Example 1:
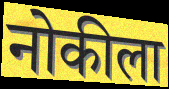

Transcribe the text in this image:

नोकीला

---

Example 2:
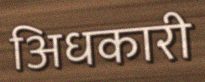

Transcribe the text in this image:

अिधकारी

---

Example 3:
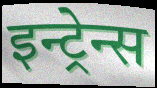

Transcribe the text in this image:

इन्ट्रेन्स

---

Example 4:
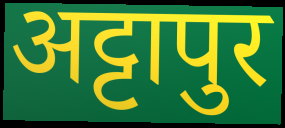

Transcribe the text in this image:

अट्टापुर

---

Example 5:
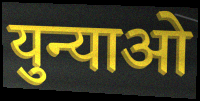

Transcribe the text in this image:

युन्याओ